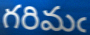
గరిమఁ